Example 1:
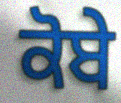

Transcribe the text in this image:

ਕੋਬੇ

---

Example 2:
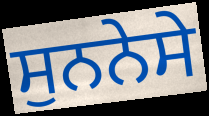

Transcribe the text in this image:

ਸੁਨਨੇਸੇ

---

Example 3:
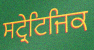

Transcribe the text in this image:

ਸਟ੍ਰੇਟਿਜਿਕ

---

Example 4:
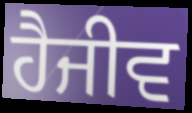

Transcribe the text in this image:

ਹੈਜੀਵ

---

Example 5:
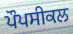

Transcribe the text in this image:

ਪੌਪਸੀਕਲ